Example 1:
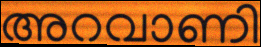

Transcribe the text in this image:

അറവാണി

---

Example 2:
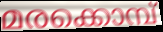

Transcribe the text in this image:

മരക്കൊമ്പ്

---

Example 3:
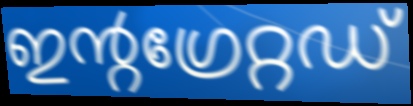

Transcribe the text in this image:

ഇന്റഗ്രേറ്റഡ്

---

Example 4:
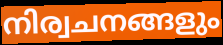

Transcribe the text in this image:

നിര്വചനങ്ങളും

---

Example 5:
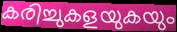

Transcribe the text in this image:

കരിച്ചുകളയുകയും